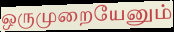
ஒருமுறையேனும்